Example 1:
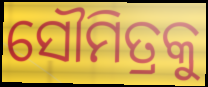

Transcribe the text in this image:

ସୌମିତ୍ରକୁ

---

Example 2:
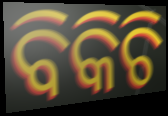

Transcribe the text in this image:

ବିକିଚି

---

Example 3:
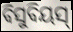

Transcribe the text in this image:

ବିସୁବିୟସ୍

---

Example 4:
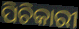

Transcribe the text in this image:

ପିଚିକାରୀ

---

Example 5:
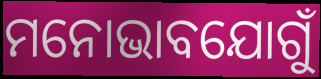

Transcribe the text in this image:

ମନୋଭାବଯୋଗୁଁ